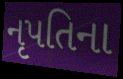
નૃપતિના